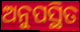
ଅନୁପସ୍ଥିତ